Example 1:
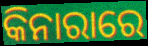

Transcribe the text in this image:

କିନାରାରେ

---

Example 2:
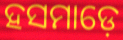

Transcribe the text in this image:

ହସମାଡ଼େ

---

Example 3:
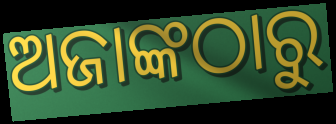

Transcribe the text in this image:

ଅଜାଙ୍କଠାରୁ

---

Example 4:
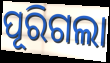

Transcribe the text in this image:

ପୂରିଗଲା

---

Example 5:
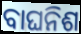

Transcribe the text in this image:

ବାଘନିଶ